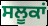
ਸਲੂਕਾਂ